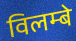
विलम्बे